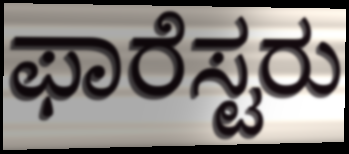
ಫಾರೆಸ್ಟರು